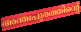
അന്തഃപുരത്തിന്റെ